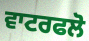
ਵਾਟਰਫਲੋ